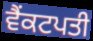
ਵੈਂਕਟਪਤੀ